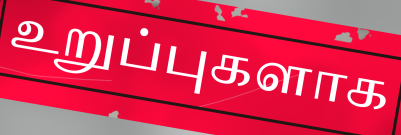
உறுப்புகளாக